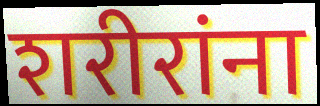
शरीरांना